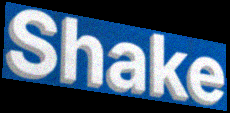
Shake